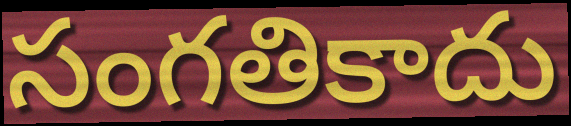
సంగతికాదు